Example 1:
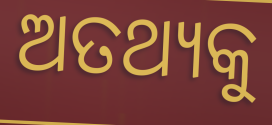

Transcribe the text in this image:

ଅତଥ୍ୟକୁ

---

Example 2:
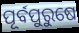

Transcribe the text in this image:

ପୂର୍ବପୁରୁଷେ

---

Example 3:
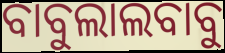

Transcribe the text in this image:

ବାବୁଲାଲବାବୁ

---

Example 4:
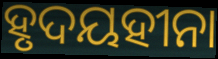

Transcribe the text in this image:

ହୃଦୟହୀନା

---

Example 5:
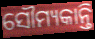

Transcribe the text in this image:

ସୌମ୍ୟକାନ୍ତି